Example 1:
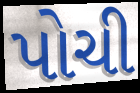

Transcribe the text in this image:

પોચી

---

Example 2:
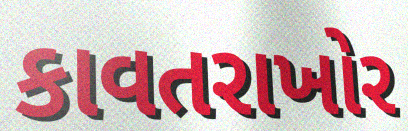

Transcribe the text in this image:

કાવતરાખોર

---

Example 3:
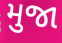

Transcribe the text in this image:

મુજા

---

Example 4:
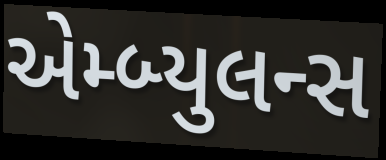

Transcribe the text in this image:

એમ્બ્યુલન્સ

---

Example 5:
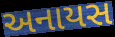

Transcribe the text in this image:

અનાયસ